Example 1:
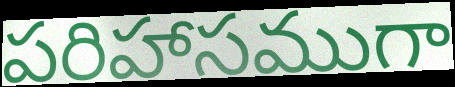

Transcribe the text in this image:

పరిహాసముగా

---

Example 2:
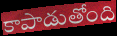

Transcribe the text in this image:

కాపాడుతోంది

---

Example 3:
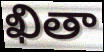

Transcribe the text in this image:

ఖితా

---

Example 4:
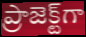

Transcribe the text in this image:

ప్రాజెక్ట్‌గా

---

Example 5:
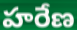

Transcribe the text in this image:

హరేణ